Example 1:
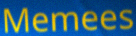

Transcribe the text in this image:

Memees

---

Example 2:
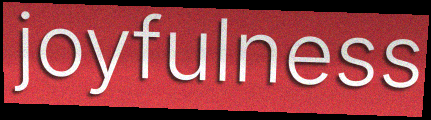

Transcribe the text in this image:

joyfulness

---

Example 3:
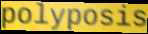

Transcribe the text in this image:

polyposis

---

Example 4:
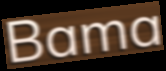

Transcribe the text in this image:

Bama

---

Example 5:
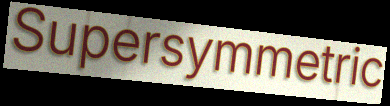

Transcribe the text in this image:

Supersymmetric